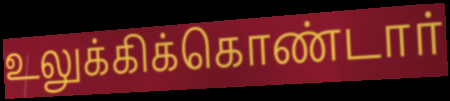
உலுக்கிக்கொண்டார்